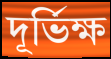
দূর্ভিক্ষ